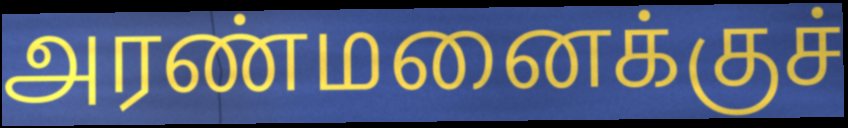
அரண்மனைக்குச்